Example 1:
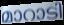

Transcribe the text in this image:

മാറാടി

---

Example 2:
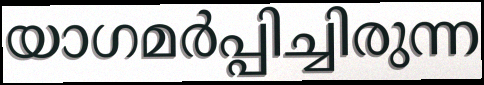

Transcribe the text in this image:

യാഗമർപ്പിച്ചിരുന്ന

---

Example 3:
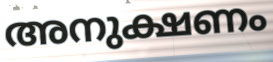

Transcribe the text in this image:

അനുക്ഷണം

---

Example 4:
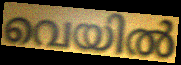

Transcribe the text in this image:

വെയിൽ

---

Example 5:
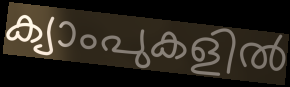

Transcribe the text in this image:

ക്യാംപുകളിൽ